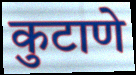
कुटाणे